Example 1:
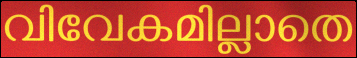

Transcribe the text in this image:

വിവേകമില്ലാതെ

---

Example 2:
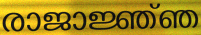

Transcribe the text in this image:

രാജാജ്ഞ്ഞ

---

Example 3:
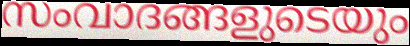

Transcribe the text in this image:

സംവാദങ്ങളുടെയും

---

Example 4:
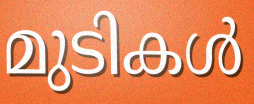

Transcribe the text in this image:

മുടികൾ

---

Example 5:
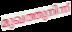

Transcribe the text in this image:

മുഖത്തുനിന്ന്